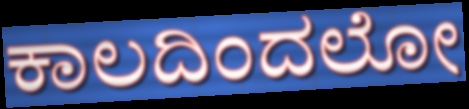
ಕಾಲದಿಂದಲೋ